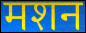
मशन